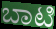
ಬಾಟಿ